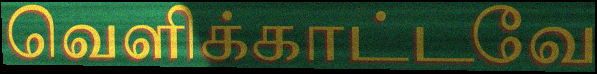
வெளிக்காட்டவே